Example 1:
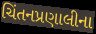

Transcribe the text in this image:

ચિંતનપ્રણાલીના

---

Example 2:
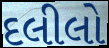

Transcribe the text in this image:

દલીલો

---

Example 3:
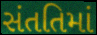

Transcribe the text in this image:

સંતતિમાં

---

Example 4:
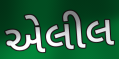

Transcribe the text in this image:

એલીલ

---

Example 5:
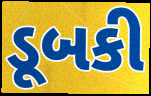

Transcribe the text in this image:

ડૂબકી